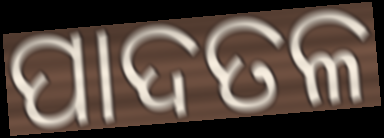
ପାଦତଳ